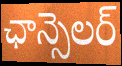
ఛాన్సెలర్